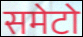
समेटो